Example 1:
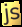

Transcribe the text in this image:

js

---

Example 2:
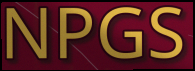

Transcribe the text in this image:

NPGS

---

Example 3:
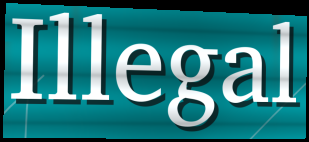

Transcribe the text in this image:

Illegal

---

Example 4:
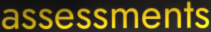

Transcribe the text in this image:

assessments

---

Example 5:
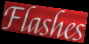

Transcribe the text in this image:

Flashes